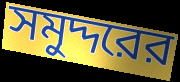
সমুদ্দরের